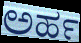
ಅರ್ಹ